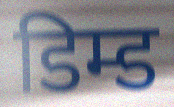
डिम्ड